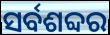
ସର୍ବଶବ୍ଦର